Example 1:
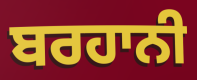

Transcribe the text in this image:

ਬਰਹਾਨੀ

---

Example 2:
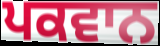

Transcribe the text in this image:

ਪਕਵਾਨ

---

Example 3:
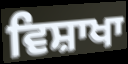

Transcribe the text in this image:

ਵਿਸ਼ਾਖਾ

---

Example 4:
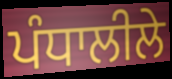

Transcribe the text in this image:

ਪੰਧਾਲੀਲੇ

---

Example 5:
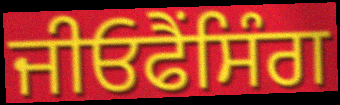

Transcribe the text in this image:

ਜੀਓਫੈਂਸਿੰਗ